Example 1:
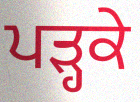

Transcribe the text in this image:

ਪੜ੍ਹਕੇ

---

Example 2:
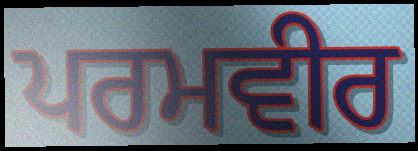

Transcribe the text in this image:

ਪਰਮਵੀਰ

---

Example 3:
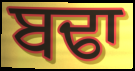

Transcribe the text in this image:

ਬਢਾ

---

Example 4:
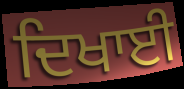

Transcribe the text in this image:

ਦਿਖਾਈ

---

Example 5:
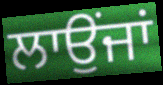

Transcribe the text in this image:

ਲਾਉਂਜਾਂ